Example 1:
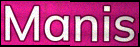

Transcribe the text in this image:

Manis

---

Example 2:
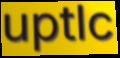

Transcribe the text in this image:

uptlc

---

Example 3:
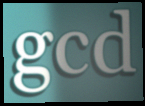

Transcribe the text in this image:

gcd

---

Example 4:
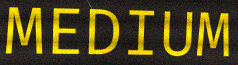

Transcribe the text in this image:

MEDIUM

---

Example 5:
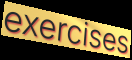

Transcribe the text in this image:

exercises